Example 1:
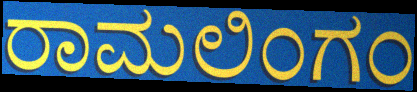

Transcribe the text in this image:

ರಾಮಲಿಂಗಂ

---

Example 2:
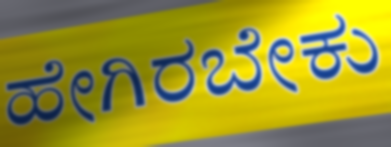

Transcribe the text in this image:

ಹೇಗಿರಬೇಕು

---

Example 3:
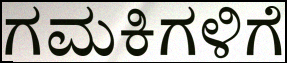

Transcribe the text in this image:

ಗಮಕಿಗಳಿಗೆ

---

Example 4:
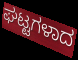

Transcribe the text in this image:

ಘಟ್ಟಗಳಾದ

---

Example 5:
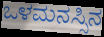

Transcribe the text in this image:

ಒಳಮನಸ್ಸಿನ